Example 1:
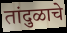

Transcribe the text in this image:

तांदुळाचे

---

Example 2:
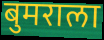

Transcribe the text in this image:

बुमराला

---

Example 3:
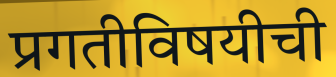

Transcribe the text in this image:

प्रगतीविषयीची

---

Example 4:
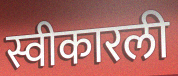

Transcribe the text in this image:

स्वीकारली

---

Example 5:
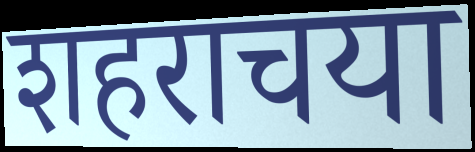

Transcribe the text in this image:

शहराचया